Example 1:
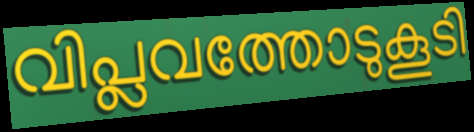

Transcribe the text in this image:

വിപ്ലവത്തോടുകൂടി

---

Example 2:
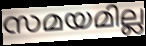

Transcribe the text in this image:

സമയമില്ല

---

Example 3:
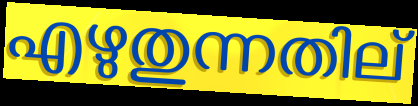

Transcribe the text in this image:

എഴുതുന്നതില്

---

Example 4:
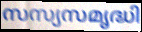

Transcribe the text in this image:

സസ്യസമൃദ്ധി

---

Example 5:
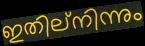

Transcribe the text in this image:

ഇതില്നിന്നും